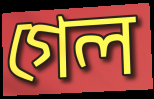
গেল